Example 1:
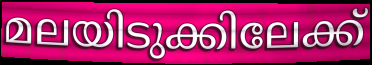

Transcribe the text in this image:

മലയിടുക്കിലേക്ക്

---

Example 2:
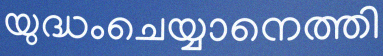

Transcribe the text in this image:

യുദ്ധംചെയ്യാനെത്തി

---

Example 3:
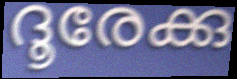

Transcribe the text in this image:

ദൂരേക്കു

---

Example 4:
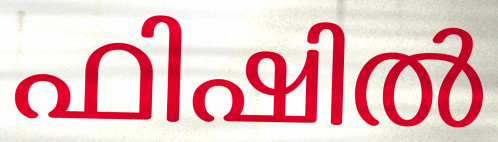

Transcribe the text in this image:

ഫിഷിൽ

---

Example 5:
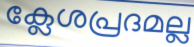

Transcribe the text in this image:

ക്ലേശപ്രദമല്ല